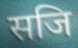
सजि